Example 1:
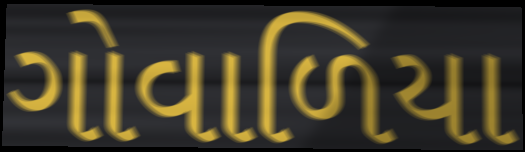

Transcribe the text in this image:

ગોવાળિયા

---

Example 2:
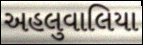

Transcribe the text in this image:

અહલુવાલિયા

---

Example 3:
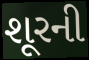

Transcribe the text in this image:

શૂરની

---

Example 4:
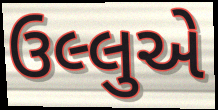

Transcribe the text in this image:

ઉલ્લુએ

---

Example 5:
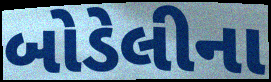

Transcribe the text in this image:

બોડેલીના